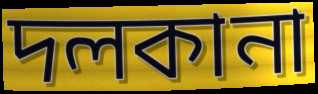
দলকানা